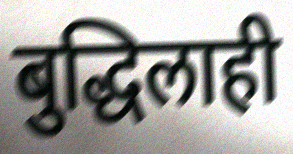
बुद्धिलाही